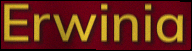
Erwinia